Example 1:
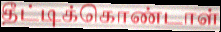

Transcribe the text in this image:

தீட்டிக்கொண்டாள்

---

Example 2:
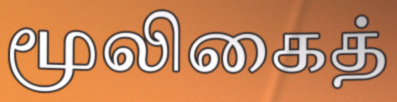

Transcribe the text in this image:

மூலிகைத்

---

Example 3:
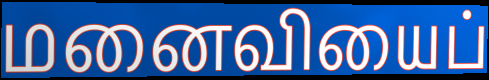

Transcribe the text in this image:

மனைவியைப்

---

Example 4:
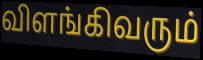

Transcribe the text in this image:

விளங்கிவரும்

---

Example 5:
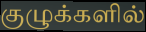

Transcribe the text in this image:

குழுக்களில்